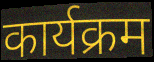
कार्यक्रम